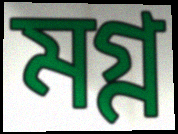
মগ্ন